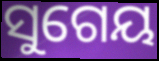
ସୁଗେୟ